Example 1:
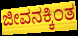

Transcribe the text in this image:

ಜೀವನಕ್ಕಿಂತ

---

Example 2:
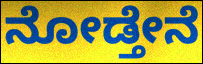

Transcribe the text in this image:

ನೋಡ್ತೇನೆ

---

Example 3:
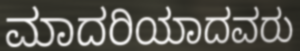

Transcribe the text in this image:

ಮಾದರಿಯಾದವರು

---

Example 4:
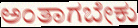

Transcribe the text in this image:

ಅಂತಾಗಬೇಕು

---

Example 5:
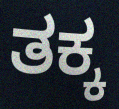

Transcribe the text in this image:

ತಕ್ಕ